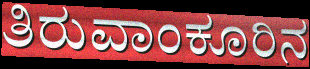
ತಿರುವಾಂಕೂರಿನ